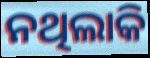
ନଥିଲାକି